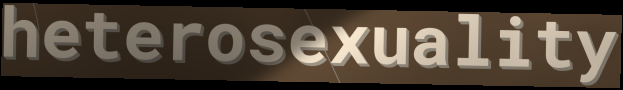
heterosexuality